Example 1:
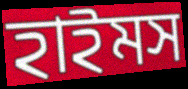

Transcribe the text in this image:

হাইমস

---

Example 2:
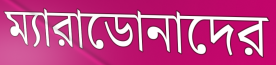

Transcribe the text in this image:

ম্যারাডোনাদের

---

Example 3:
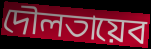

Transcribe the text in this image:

দৌলতায়েব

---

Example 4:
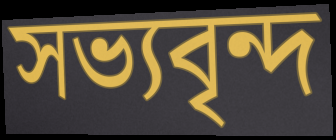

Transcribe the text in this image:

সভ্যবৃন্দ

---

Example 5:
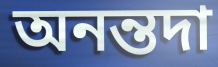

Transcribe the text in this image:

অনন্তদা